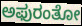
ಅಫುರಂತೋ